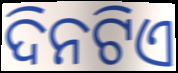
ଦିନଟିଏ